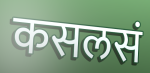
कसलसं